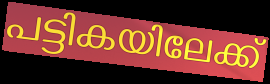
പട്ടികയിലേക്ക്